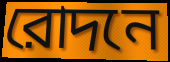
রোদনে